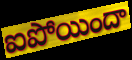
ఐపోయిందా